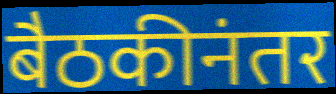
बैठकीनंतर